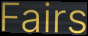
Fairs